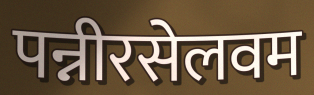
पन्नीरसेलवम